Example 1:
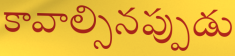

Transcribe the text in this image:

కావాల్సినప్పుడు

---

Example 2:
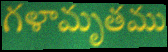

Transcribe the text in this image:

గళామృతము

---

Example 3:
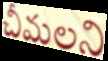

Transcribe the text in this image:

చీమలని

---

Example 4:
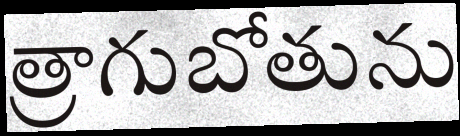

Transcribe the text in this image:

త్రాగుబోతును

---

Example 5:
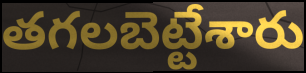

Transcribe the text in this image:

తగలబెట్టేశారు